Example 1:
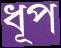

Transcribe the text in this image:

ধূপ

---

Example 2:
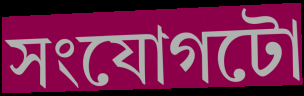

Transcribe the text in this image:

সংযোগটো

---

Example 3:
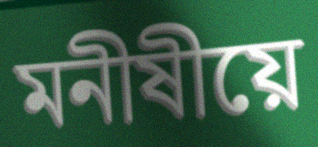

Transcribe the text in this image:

মনীষীয়ে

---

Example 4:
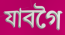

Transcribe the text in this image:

যাবগৈ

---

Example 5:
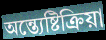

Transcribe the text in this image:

অন্ত্যেষ্টিক্ৰিয়া